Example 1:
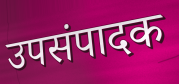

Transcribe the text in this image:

उपसंपादक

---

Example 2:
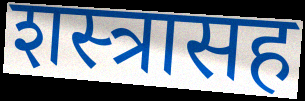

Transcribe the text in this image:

शस्त्रासह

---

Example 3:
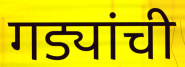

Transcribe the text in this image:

गड्यांची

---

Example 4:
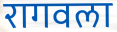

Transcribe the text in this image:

रागवला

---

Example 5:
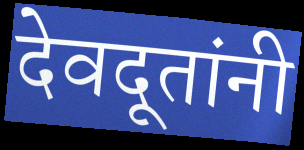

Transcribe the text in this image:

देवदूतांनी